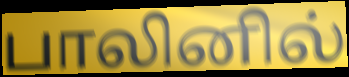
பாலினில்